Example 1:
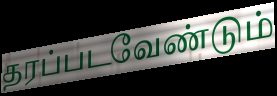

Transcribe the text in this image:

தரப்படவேண்டும்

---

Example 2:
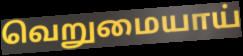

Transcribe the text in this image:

வெறுமையாய்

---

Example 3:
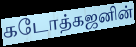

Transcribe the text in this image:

கடோத்கஜனின்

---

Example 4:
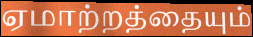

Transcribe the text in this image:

ஏமாற்றத்தையும்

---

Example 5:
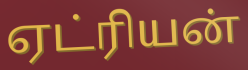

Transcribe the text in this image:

ஏட்ரியன்